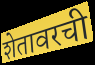
शेतावरची